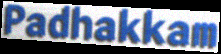
Padhakkam